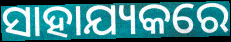
ସାହାଯ୍ୟକରେ